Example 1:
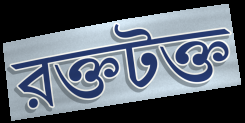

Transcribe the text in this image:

রক্তটক্ত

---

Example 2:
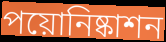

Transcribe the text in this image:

পয়োনিষ্কাশন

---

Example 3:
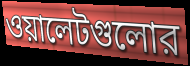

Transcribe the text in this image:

ওয়ালেটগুলোর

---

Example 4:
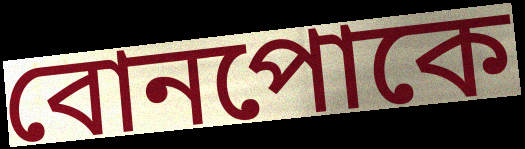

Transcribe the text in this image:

বোনপোকে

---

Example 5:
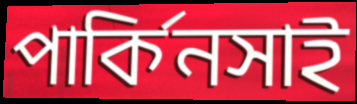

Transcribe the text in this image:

পার্কিনসাই